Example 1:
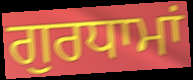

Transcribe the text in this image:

ਗੁਰਧਾਮਾਂ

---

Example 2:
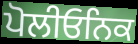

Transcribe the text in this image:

ਪੋਲੀਓਨਿਕ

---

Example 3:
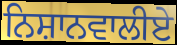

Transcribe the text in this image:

ਨਿਸ਼ਾਨਵਾਲੀਏ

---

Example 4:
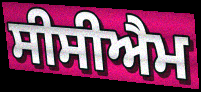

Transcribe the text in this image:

ਸੀਸੀਐਮ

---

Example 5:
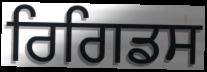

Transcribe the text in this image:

ਰਿਗਿਡਸ